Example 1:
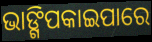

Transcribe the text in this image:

ଭାଙ୍ଗିପକାଇପାରେ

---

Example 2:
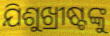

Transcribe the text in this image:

ଯିଶୁଖ୍ରୀଷ୍ଟଙ୍କୁ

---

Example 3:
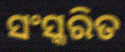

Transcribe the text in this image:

ସଂସ୍କରିତ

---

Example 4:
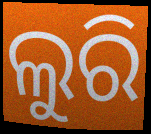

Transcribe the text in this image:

ଲୁରି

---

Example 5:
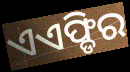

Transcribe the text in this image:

ଏଏଫ୍ଡିର